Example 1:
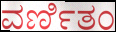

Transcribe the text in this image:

ವರ್ಣಿತಂ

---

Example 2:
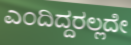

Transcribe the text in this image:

ಎಂದಿದ್ದರಲ್ಲದೇ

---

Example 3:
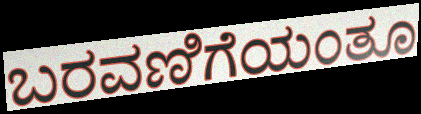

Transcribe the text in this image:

ಬರವಣಿಗೆಯಂತೂ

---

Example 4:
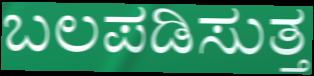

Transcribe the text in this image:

ಬಲಪಡಿಸುತ್ತ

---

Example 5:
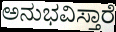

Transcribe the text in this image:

ಅನುಭವಿಸ್ತಾರೆ